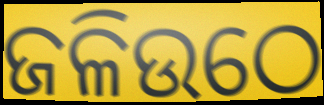
ଜଳିଉଠେ